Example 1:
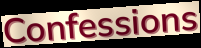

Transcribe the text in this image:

Confessions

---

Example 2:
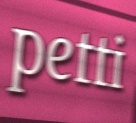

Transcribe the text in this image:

petti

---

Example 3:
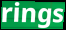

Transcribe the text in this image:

rings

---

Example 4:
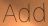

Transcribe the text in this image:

Add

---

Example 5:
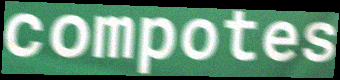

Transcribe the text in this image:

compotes